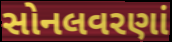
સોનલવરણાં